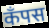
कॅंपस